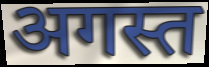
अगस्‍त